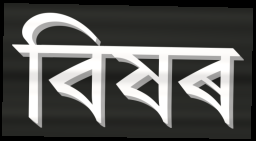
বিষৰ